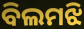
ବିଲମଝି